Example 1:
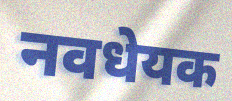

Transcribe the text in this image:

नवधेयक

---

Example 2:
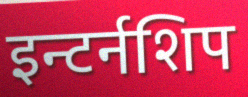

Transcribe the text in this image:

इन्टर्नशिप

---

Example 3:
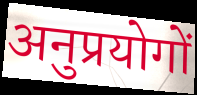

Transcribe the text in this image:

अनुप्रयोगों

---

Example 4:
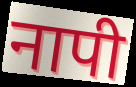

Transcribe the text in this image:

नापी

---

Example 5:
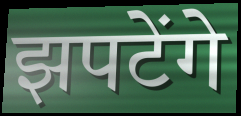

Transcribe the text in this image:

झपटेंगे